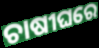
ଚାଷୀଘରେ